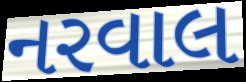
નરવાલ